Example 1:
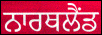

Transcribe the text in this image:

ਨਾਰਥਲੈਂਡ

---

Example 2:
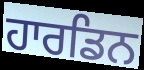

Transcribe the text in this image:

ਹਾਰਡਿਨ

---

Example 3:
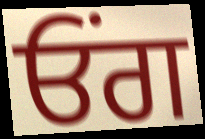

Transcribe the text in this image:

ਓਂਗ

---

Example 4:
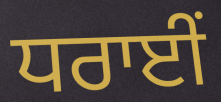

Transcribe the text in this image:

ਧਰਾਈਂ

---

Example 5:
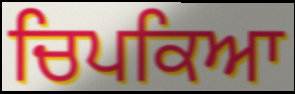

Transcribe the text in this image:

ਚਿਪਕਿਆ